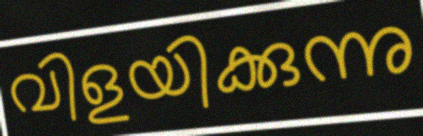
വിളയിക്കുന്നു